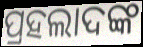
ପ୍ରହଲାଦଙ୍କ